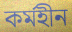
কৰ্মহীন